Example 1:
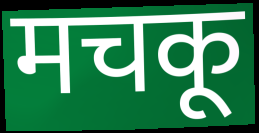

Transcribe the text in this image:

मचकू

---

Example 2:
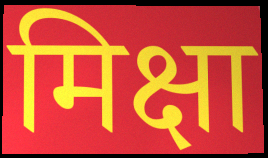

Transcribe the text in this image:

मिक्षा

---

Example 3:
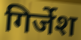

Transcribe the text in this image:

गिर्जेश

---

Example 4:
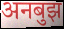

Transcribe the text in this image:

अनबुझ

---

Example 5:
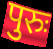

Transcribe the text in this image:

पुरुः